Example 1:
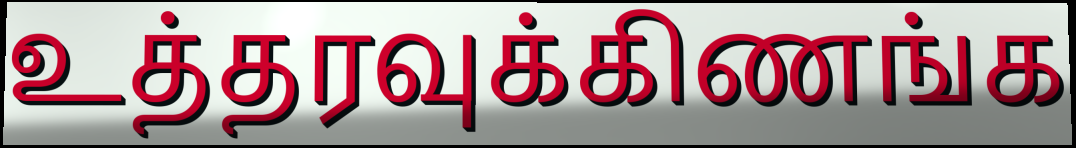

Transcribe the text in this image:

உத்தரவுக்கிணங்க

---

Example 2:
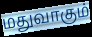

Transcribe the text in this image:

மதுவாகும்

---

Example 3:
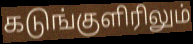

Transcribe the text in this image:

கடுங்குளிரிலும்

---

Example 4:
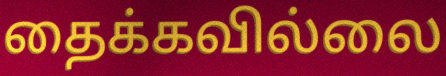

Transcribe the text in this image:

தைக்கவில்லை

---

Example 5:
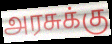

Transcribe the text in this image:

அரசுக்கு